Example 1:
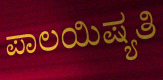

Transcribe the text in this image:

ಪಾಲಯಿಷ್ಯತಿ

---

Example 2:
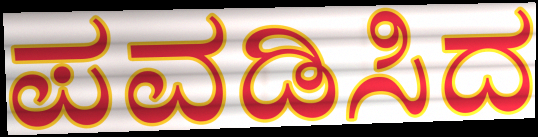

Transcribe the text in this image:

ಪವಡಿಸಿದ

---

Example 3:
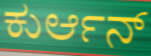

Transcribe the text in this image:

ಕುರ್ಆನ್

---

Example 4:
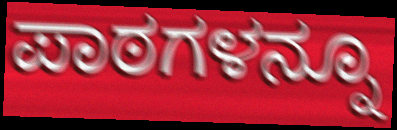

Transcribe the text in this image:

ಪಾಠಗಳನ್ನೂ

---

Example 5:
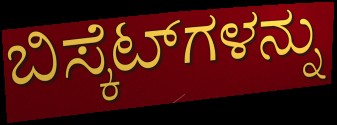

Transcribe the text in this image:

ಬಿಸ್ಕೆಟ್‌ಗಳನ್ನು